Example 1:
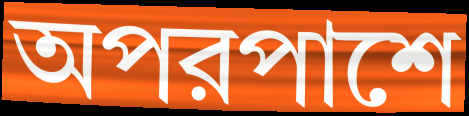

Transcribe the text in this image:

অপরপাশে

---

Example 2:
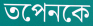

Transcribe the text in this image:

তপেনকে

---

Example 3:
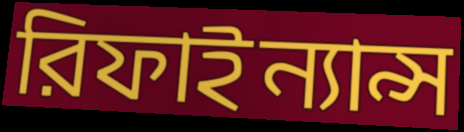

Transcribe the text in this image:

রিফাইন্যান্স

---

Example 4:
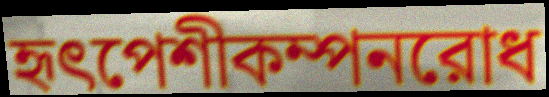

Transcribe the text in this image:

হৃৎপেশীকম্পনরোধ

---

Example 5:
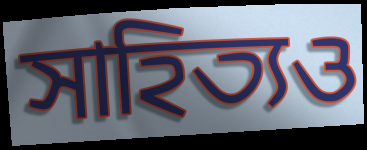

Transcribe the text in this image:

সাহিত্যও